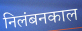
निलंबनकाल